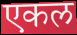
एकल